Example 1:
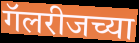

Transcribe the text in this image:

गॅलरीजच्या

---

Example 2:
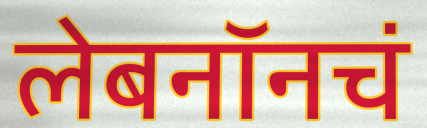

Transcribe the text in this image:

लेबनॉनचं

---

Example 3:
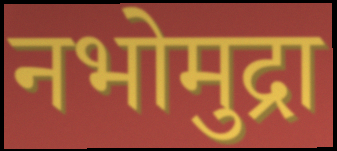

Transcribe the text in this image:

नभोमुद्रा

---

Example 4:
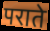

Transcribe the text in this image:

पराते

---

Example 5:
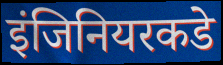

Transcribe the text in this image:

इंजिनियरकडे